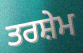
ਤਰਸ਼ੇਮ